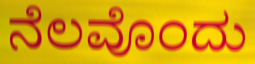
ನೆಲವೊಂದು